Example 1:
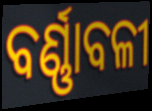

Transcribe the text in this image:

ବର୍ଣ୍ଣାବଳୀ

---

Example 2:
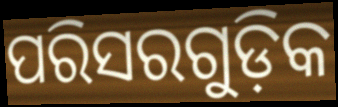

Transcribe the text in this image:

ପରିସରଗୁଡ଼ିକ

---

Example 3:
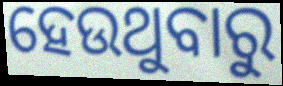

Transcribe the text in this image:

ହେଉଥୁବାରୁ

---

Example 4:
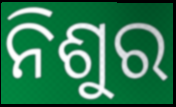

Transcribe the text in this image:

ନିଶୁର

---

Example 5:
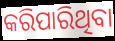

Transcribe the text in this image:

କରିପାରିଥିବା